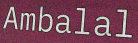
Ambalal